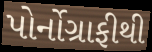
પોર્નોગ્રાફીથી